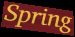
Spring